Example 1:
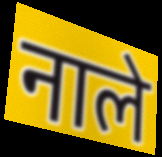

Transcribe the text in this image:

नाले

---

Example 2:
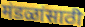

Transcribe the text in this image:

मंडळांसाठी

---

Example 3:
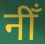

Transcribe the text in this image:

नीँ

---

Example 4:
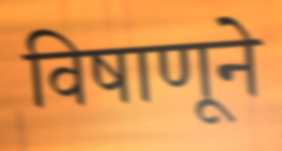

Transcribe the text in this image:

विषाणूने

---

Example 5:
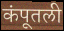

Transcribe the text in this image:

कंपूतली